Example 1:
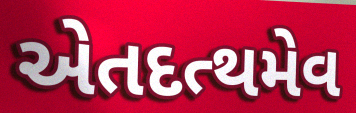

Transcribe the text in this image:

એતદત્થમેવ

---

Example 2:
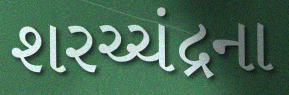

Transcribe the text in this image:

શરચ્ચંદ્રના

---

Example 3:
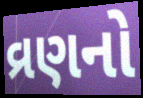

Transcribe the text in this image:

વ્રણનો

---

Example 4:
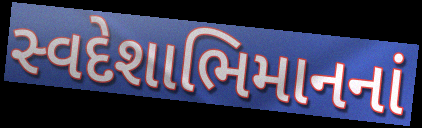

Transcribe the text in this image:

સ્વદેશાભિમાનનાં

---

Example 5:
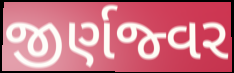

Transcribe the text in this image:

જીર્ણજ્વર